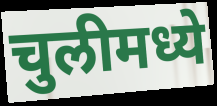
चुलीमध्ये